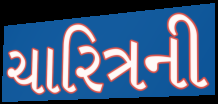
ચારિત્રની